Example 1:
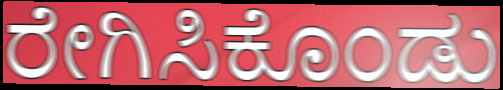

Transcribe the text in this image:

ರೇಗಿಸಿಕೊಂಡು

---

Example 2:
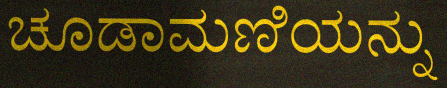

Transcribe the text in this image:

ಚೂಡಾಮಣಿಯನ್ನು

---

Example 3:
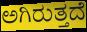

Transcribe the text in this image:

ಅಗಿರುತ್ತದೆ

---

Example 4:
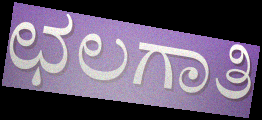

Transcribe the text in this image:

ಛಲಗಾತಿ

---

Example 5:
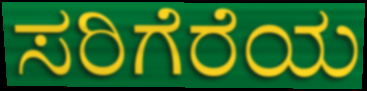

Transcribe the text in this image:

ಸರಿಗೆರೆಯ